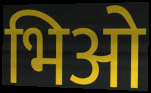
भिओ